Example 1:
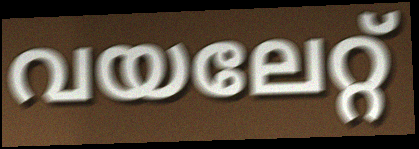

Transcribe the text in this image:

വയലേറ്റ്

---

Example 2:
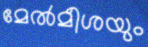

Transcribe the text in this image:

മേൽമീശയും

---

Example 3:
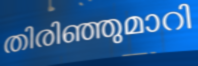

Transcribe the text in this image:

തിരിഞ്ഞുമാറി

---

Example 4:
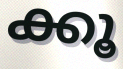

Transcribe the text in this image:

ക്കൂ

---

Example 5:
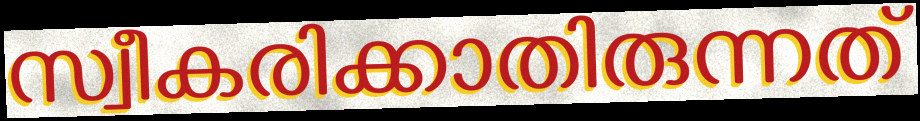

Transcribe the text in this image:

സ്വീകരിക്കാതിരുന്നത്